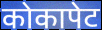
कोकापेट